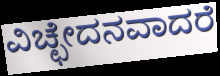
ವಿಚ್ಛೇದನವಾದರೆ